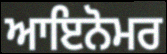
ਆਇਨੋਮਰ